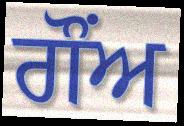
ਗੌਂਅ